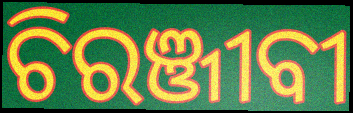
ଚିରଞ୍ଜୀବୀ